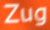
Zug